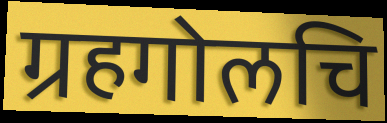
ग्रहगोलचि